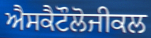
ਐਸਕੈਟੌਲੋਜੀਕਲ